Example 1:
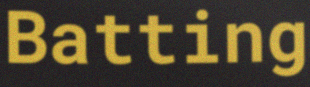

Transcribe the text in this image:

Batting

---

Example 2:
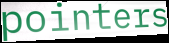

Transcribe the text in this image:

pointers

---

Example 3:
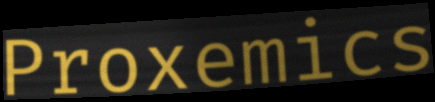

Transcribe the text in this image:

Proxemics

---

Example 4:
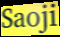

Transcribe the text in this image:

Saoji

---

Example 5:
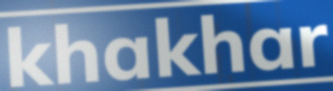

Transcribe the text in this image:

khakhar